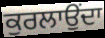
ਕੁਰਲਾਉਂਦਾ